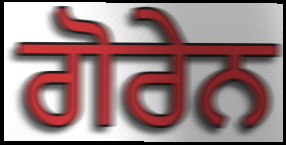
ਗੋਰੇਨ